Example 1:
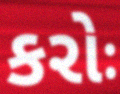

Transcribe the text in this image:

કરોઃ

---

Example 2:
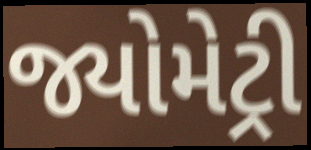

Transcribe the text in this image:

જ્યોમેટ્રી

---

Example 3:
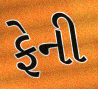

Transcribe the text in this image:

ફેની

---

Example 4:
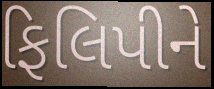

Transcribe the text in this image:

ફિલિપીને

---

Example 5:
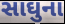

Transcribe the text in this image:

સાઘુના